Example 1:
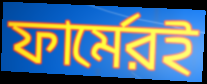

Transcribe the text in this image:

ফার্মেরই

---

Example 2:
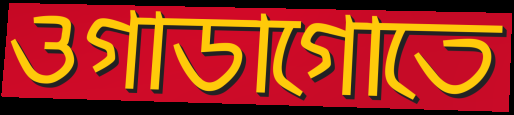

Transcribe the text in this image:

ওগাডাগোতে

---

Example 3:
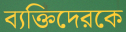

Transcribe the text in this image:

ব্যক্তিদেরকে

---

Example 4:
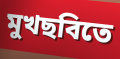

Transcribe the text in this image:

মুখছবিতে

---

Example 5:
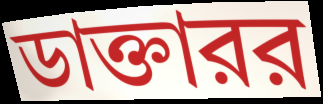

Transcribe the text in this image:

ডাক্তারর